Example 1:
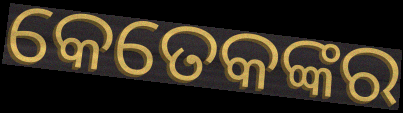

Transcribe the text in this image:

କେତେକଙ୍କର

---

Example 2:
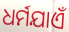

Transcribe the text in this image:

ଧର୍ମଯାଏଁ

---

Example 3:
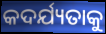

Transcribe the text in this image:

କଦର୍ଯ୍ୟତାକୁ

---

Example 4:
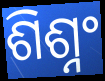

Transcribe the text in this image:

ଶିଶ୍ନଂ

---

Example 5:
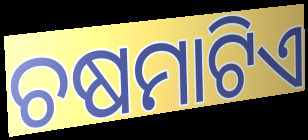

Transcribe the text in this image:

ଚଷମାଟିଏ